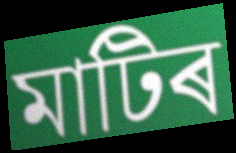
মাটিৰ